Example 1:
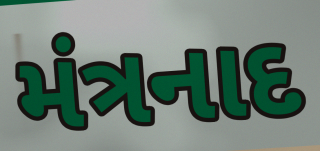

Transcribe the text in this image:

મંત્રનાદ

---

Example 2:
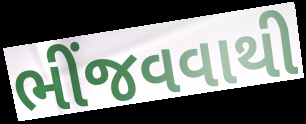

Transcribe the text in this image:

ભીંજવવાથી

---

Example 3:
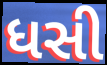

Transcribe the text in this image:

ધસી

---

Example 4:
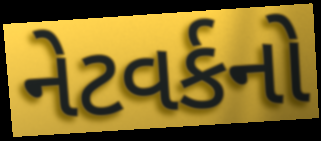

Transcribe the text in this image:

નેટવર્કનો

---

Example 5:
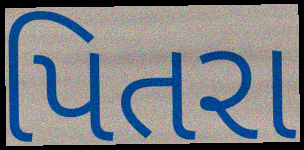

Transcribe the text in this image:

પિતરા